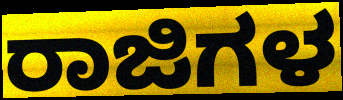
ರಾಜಿಗಳ